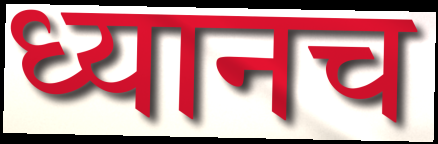
ध्यानच